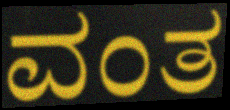
ವಂತ